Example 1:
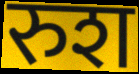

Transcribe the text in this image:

रुश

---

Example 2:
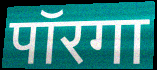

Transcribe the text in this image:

पॉरगा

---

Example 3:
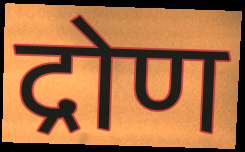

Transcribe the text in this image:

द्रोण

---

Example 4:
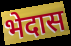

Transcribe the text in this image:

भेदास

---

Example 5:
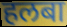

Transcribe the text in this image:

हलबा